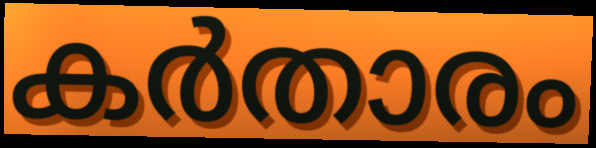
കർതാരം